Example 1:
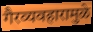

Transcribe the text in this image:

गैरव्यवहारामुळे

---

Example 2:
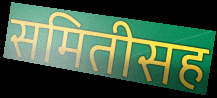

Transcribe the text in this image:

समितीसह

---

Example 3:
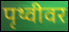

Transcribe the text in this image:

पृथ्वीवर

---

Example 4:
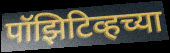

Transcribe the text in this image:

पॉझिटिव्हच्या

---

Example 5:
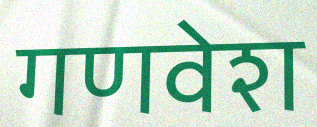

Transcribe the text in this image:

गणवेश